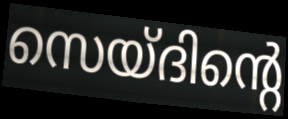
സെയ്ദിന്റെ